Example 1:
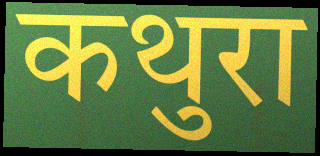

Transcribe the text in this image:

कथुरा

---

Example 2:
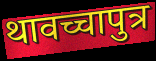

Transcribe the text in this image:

थावच्चापुत्र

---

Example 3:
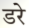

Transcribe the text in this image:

डरे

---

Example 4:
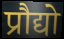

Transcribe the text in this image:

प्रौद्यो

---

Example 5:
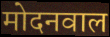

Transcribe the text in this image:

मोदनवाल